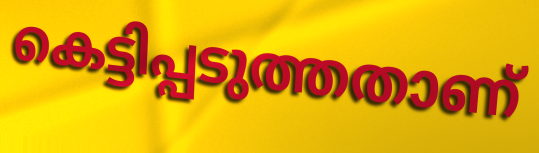
കെട്ടിപ്പടുത്തതാണ്